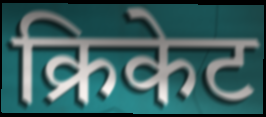
क्रिकेट